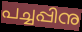
പച്ചപ്പിനു